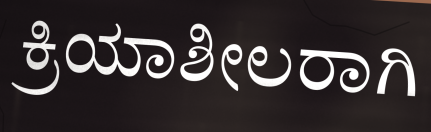
ಕ್ರಿಯಾಶೀಲರಾಗಿ